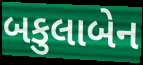
બકુલાબેન